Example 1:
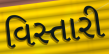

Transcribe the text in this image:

વિસ્તારી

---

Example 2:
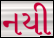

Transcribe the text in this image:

નયી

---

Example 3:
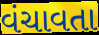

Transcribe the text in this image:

વંચાવતા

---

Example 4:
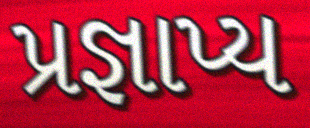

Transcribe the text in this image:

પ્રજ્ઞાપ્ય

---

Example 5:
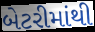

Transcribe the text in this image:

બેટરીમાંથી